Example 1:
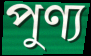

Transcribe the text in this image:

পুণ্য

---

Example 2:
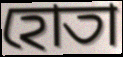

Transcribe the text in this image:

হোতা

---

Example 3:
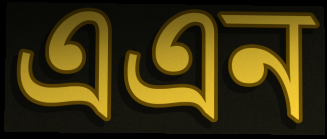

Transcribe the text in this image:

এএন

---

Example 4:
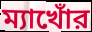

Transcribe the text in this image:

ম্যাখোঁর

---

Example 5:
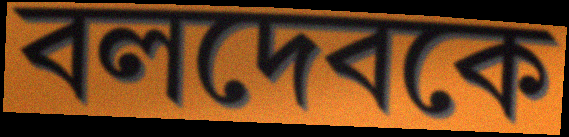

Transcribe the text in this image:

বলদেবকে